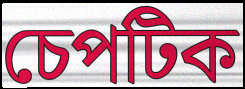
চেপটিক